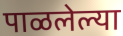
पाळलेल्या